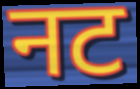
नट